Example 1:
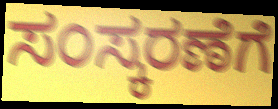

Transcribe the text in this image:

ಸಂಸ್ಕರಣೆಗೆ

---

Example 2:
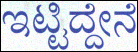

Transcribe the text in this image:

ಇಟ್ಟಿದ್ದೇನೆ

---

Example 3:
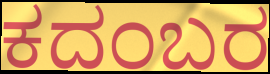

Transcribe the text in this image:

ಕದಂಬರ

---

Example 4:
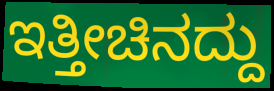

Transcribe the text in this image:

ಇತ್ತೀಚಿನದ್ದು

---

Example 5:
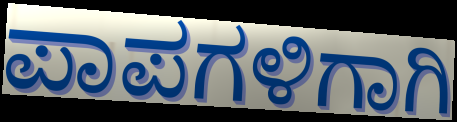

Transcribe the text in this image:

ಪಾಪಗಳಿಗಾಗಿ